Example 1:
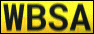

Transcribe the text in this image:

WBSA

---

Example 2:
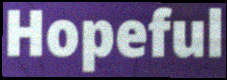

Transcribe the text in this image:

Hopeful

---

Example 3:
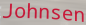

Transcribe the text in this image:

Johnsen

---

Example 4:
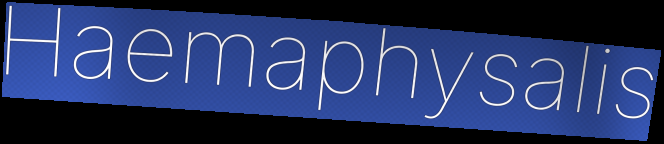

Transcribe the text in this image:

Haemaphysalis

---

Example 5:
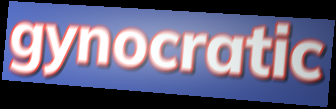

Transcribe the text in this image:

gynocratic